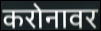
करोनावर